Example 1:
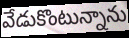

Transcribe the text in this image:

వేడుకొంటున్నాను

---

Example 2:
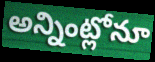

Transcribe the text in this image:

అన్నింట్లోనూ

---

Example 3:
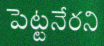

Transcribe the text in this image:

పెట్టనేరని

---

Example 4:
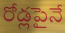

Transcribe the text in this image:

రోడ్లపైనే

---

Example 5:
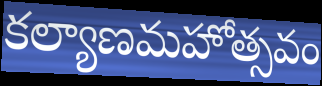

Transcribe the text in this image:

కల్యాణమహోత్సవం